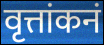
वृत्तांकनं